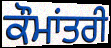
ਕੌਮਾਂਤਰੀ